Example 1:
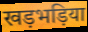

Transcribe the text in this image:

खड़भड़िया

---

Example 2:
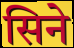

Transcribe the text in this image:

सिने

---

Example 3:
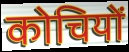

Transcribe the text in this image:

कोचियों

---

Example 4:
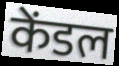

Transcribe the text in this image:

केंडल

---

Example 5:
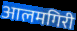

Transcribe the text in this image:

आलमगिरी